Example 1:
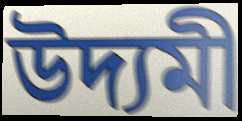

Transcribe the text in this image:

উদ্যমী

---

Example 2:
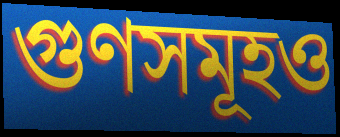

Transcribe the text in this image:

গুণসমূহও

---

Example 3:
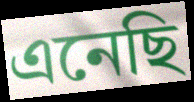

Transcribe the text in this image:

এনেছি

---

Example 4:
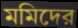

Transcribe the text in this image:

মমিদের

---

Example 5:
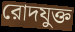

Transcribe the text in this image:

রোদযুক্ত